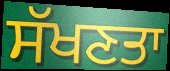
ਸੱਖਣਤਾ